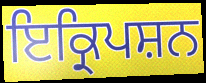
ਇਕ੍ਰਿਪਸ਼ਨ